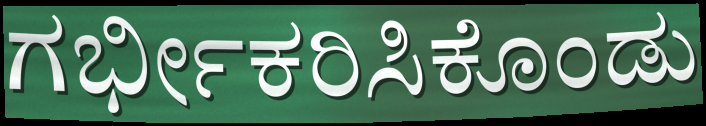
ಗರ್ಭೀಕರಿಸಿಕೊಂಡು